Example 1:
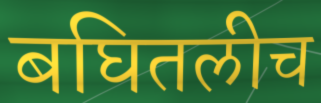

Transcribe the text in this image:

बघितलीच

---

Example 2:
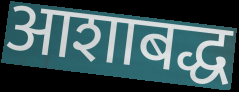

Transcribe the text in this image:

आशाबद्ध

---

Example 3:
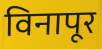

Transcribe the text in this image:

विनापूर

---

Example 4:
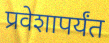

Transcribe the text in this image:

प्रवेशापर्यंत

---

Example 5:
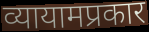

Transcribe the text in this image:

व्यायामप्रकार